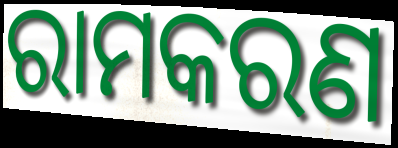
ରାମକରଣ